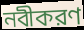
নবীকরণ